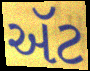
ઍટ